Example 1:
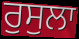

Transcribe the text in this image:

ਰੁਸੁਲਾ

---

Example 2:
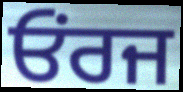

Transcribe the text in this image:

ਓਂਰਜ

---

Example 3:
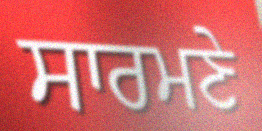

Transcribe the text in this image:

ਸਾਰਮਣੇ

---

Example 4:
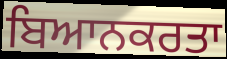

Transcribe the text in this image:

ਬਿਆਨਕਰਤਾ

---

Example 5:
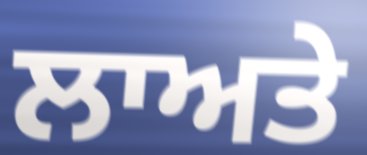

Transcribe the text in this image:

ਲਾਅਤੇ